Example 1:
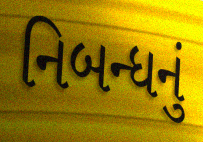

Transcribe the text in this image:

નિબન્ધનું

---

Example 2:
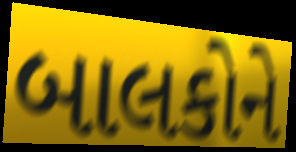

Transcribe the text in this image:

બાલકોને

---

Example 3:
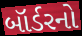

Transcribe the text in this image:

બૉર્ડરનો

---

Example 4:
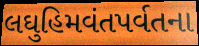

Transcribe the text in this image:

લઘુહિમવંતપર્વતના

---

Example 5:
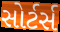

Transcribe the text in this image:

સોર્ટર્સ